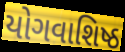
યોગવાશિષ્ઠ